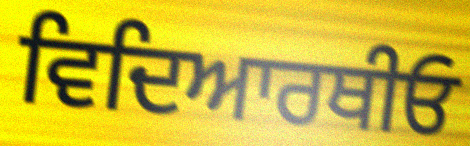
ਵਿਦਿਆਰਥੀਓ